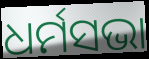
ଧର୍ମସଭା